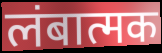
लंबात्मक